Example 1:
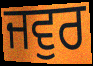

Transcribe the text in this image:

ਜਵੁਰ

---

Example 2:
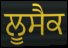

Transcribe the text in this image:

ਲੂਸੈਕ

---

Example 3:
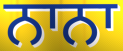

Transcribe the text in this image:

ਨਾਨਾ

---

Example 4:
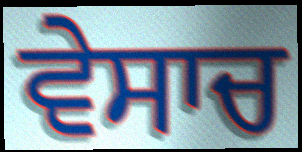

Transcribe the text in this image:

ਵੇਸਾਚ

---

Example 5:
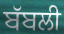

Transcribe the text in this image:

ਬੱਬਲੀ